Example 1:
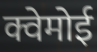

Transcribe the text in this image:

क्वेमोई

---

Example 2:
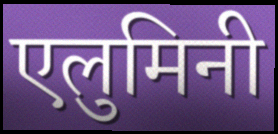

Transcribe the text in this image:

एलुमिनी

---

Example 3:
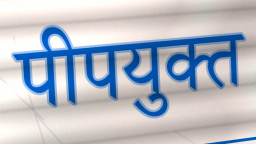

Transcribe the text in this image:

पीपयुक्त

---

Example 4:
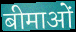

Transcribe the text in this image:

बीमाओं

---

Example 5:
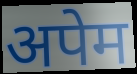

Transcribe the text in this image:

अपेम